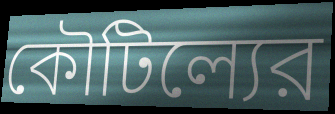
কৌটিল্যের